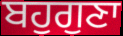
ਬਹੁਗੁਣਾ